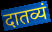
दातव्यं